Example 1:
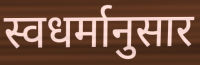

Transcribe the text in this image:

स्वधर्मानुसार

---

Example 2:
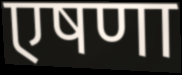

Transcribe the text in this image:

एषणा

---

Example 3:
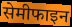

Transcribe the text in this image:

सेमीफाइन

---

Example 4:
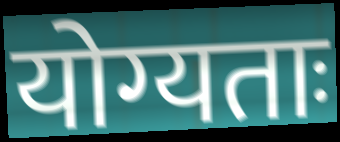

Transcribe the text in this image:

योग्यताः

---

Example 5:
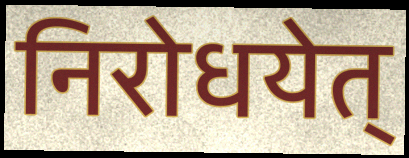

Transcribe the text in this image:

निरोधयेत्